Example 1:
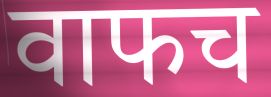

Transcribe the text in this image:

वाफच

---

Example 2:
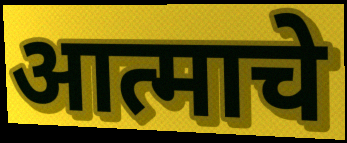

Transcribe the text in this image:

आत्माचे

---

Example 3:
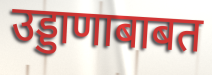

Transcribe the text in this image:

उड्डाणाबाबत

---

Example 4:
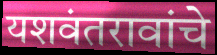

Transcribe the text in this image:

यशवंतरावांचे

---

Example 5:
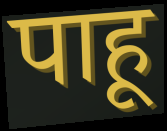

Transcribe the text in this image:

पाहू